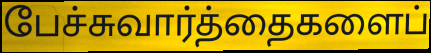
பேச்சுவார்த்தைகளைப்